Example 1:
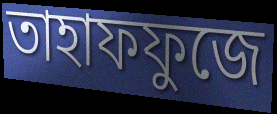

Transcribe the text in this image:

তাহাফফুজে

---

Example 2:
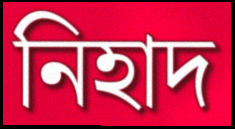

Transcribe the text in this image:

নিহাদ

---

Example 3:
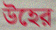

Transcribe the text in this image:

উহের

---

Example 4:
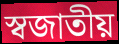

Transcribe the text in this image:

স্বজাতীয়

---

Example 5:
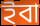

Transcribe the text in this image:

ইবা